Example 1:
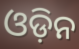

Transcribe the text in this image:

ଓଡ଼ିନ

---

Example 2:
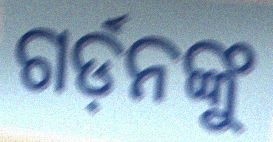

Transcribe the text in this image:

ଗର୍ଡ଼ନଙ୍କୁ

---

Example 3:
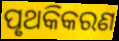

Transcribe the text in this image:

ପୃଥକିକରଣ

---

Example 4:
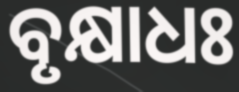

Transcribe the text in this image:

ବୃକ୍ଷାଧଃ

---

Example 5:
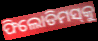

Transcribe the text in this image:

ଫିଲୋଡିମସ୍‌କୁ